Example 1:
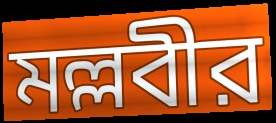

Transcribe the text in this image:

মল্লবীর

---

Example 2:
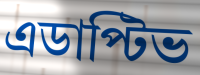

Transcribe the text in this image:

এডাপ্টিভ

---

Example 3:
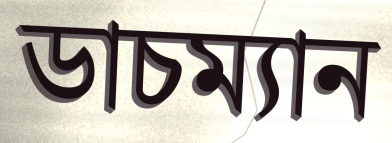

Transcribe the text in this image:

ডাচম্যান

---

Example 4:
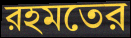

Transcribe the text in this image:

রহমতের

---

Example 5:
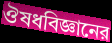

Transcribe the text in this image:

ঔষধবিজ্ঞানের